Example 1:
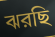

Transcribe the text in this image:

ঝরছি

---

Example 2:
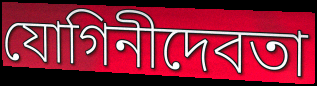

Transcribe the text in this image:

যোগিনীদেবতা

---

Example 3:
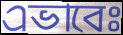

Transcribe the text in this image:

এভাবেঃ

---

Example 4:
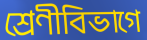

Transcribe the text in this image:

শ্রেণীবিভাগে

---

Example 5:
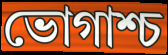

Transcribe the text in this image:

ভোগাশ্চ